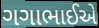
ગગાભાઈએ